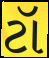
ટૉ